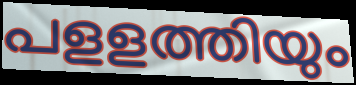
പളളത്തിയും